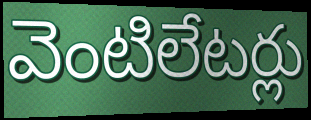
వెంటిలేటర్లు